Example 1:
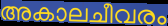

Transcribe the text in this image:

അകാലചീവരം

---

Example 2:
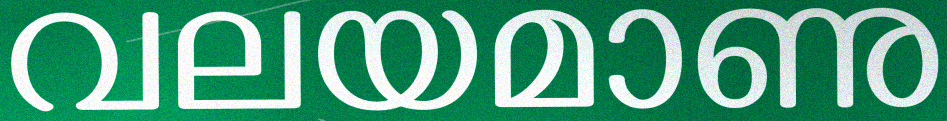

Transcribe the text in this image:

വലയമാണു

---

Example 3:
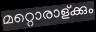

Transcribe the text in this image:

മറ്റൊരാള്ക്കും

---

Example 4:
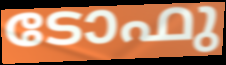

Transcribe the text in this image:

ടോഫു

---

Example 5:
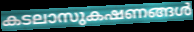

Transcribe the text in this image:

കടലാസുകഷണങ്ങൾ